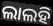
ଲାଲହି